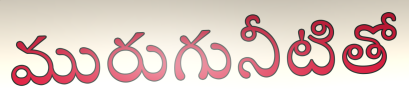
మురుగునీటితో